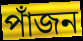
পাঁজন